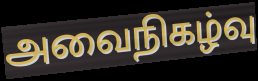
அவைநிகழ்வு